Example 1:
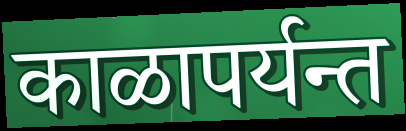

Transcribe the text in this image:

काळापर्यन्त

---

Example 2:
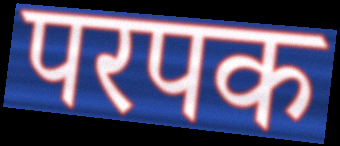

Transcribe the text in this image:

परपक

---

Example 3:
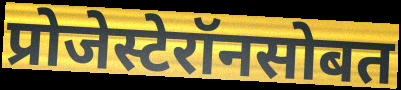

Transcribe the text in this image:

प्रोजेस्टेरॉनसोबत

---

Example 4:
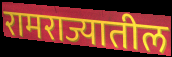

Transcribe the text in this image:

रामराज्यातील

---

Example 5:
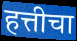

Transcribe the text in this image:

हत्तीचा